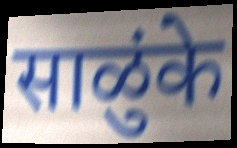
साळुंके